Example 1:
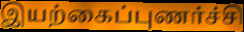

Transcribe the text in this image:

இயற்கைப்புணர்ச்சி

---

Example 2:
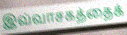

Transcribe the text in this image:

இவ்வாசகத்தைக்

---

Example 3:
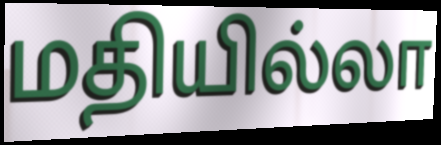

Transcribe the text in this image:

மதியில்லா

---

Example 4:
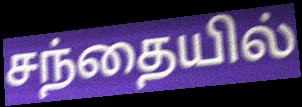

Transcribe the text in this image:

சந்தையில்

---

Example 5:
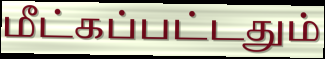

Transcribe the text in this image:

மீட்கப்பட்டதும்